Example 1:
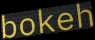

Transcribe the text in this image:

bokeh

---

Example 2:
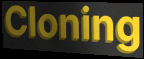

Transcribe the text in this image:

Cloning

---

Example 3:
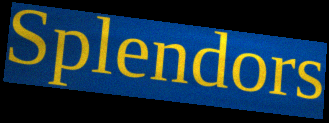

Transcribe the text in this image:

Splendors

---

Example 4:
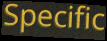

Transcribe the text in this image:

Specific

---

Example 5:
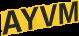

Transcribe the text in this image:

AYVM